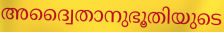
അദ്വൈതാനുഭൂതിയുടെ